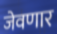
जेवणार